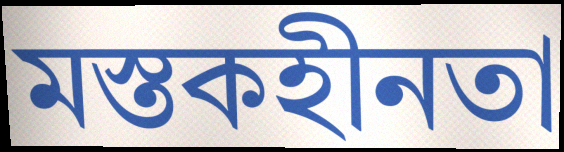
মস্তকহীনতা